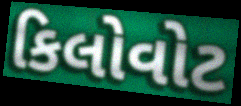
કિલોવોટ